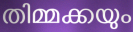
തിമ്മക്കയും